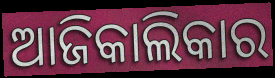
ଆଜିକାଲିକାର